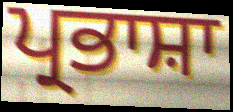
ਪ੍ਰਭਾਸ਼ਾ